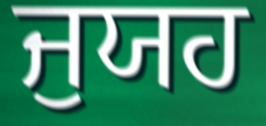
ਜੁਯਹ